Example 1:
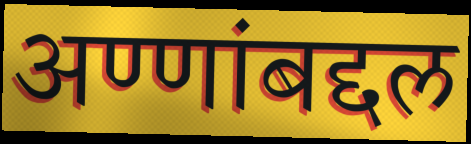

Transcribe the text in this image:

अण्णांबद्दल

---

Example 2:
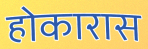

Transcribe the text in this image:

होकारास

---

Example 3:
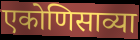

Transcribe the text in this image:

एकोणिसाव्या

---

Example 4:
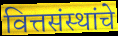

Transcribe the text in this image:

वित्तसंस्थांचे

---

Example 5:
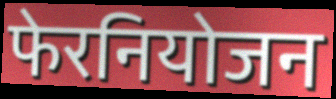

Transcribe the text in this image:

फेरनियोजन